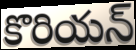
కొరియన్